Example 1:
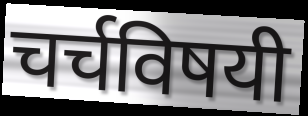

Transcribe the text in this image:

चर्चविषयी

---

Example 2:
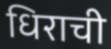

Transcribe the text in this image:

धिराची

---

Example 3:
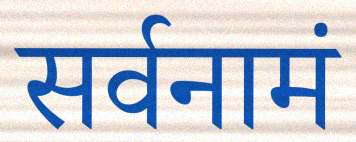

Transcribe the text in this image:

सर्वनामं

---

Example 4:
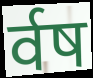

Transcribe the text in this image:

र्वष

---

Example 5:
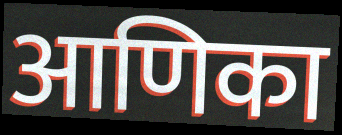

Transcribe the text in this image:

आणिका